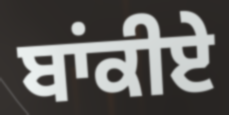
ਬਾਂਕੀਏ